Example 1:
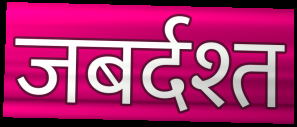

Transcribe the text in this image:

जबर्दश्त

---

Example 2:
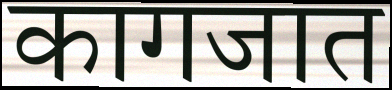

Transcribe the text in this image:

कागजात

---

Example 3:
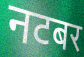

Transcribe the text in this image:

नटबर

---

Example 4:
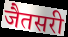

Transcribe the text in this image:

जैतसरी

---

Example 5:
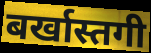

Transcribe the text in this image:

बर्खास्तगी